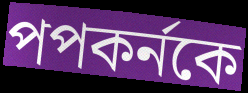
পপকর্নকে